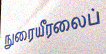
நுரையீரலைப்